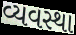
વ્યવસ્થા